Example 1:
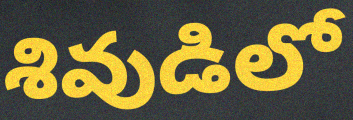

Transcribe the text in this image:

శివుడిలో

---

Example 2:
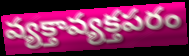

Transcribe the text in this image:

వ్యక్తావ్యక్తపరం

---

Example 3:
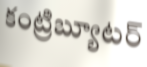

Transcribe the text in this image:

కంట్రిబ్యూటర్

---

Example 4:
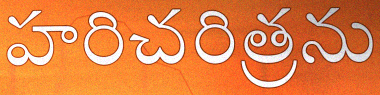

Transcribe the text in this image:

హరిచరిత్రను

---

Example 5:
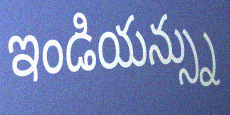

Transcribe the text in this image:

ఇండియన్స్ను